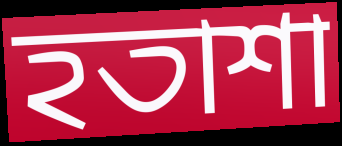
হতাশা